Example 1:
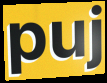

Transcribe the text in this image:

puj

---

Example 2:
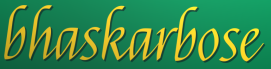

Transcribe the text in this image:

bhaskarbose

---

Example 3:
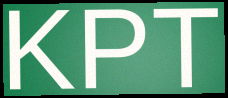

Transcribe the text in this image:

KPT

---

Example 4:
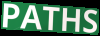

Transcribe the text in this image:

PATHS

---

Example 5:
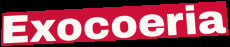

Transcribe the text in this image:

Exocoeria